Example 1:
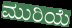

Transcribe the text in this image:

ಮುರಿಯೆ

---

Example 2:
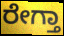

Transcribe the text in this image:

ರೇಗ್ತಾ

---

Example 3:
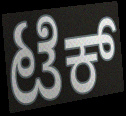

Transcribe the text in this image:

ಟೆಕ್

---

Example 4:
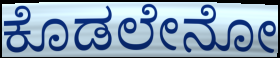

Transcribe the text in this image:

ಕೊಡಲೇನೋ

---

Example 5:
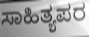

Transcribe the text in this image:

ಸಾಹಿತ್ಯಪರ